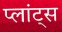
प्लांट्स